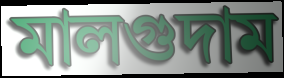
মালগুদাম